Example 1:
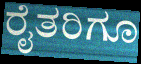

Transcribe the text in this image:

ರೈತರಿಗೂ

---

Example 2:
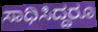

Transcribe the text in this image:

ಸಾಧಿಸಿದ್ದರೂ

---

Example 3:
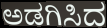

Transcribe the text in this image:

ಅಡಗಿಸಿದ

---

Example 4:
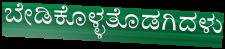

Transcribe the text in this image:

ಬೇಡಿಕೊಳ್ಳತೊಡಗಿದಳು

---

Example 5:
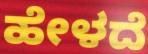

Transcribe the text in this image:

ಹೇಳದೆ